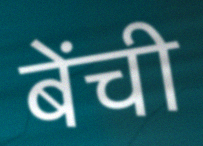
बेंची